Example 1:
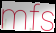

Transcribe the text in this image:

mfs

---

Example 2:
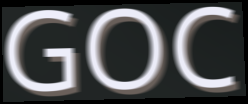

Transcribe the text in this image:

GOC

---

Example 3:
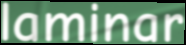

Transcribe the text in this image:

laminar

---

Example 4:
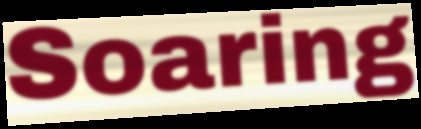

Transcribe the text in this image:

Soaring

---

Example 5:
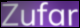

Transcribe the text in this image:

Zufar